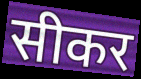
सीकर